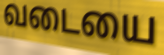
வடையை